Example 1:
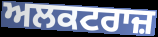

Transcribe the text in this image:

ਅਲਕਟਰਾਜ਼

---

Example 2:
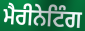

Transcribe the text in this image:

ਮੈਰੀਨੇਟਿੰਗ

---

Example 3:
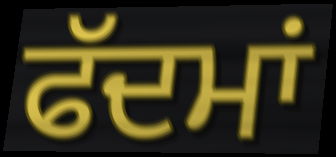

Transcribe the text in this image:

ਫੱਦਮਾਂ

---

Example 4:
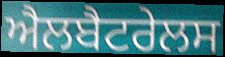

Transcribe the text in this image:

ਐਲਬੈਟਰੇਲਸ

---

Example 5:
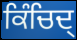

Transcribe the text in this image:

ਕਿੰਚਿਦ੍